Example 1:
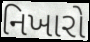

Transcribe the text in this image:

નિખારો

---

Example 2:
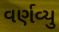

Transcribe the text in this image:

વર્ણવ્યુ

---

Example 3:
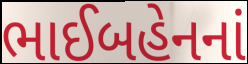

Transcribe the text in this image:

ભાઈબહેનનાં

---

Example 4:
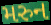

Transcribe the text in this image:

મરુન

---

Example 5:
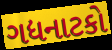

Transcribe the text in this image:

ગદ્યનાટકો